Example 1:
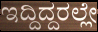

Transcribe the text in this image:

ಇದ್ದಿದ್ದರಲ್ಲೇ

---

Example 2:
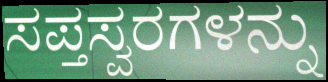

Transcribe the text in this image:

ಸಪ್ತಸ್ವರಗಳನ್ನು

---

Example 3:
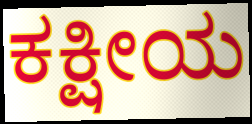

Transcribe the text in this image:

ಕಕ್ಷೀಯ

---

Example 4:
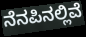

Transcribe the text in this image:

ನೆನಪಿನಲ್ಲಿವೆ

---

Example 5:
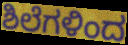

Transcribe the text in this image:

ಶಿಲೆಗಳಿಂದ